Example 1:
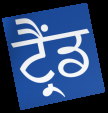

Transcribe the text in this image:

ਟ੍ਰੈਂਡ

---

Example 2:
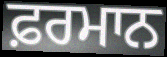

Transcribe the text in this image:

ਫ਼ਰਮਾਨ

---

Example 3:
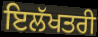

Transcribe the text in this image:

ਇਲੱਖਤਰੀ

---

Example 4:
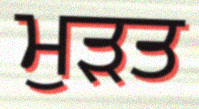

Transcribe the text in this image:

ਮੁੜਤ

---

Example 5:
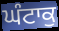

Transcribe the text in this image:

ਘੰਟਾਕੁ